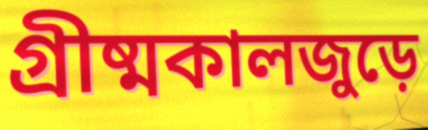
গ্রীষ্মকালজুড়ে